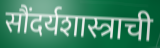
सौंदर्यशास्त्राची